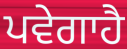
ਪਵੇਗਾਹੈ